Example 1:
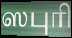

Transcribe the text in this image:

ஸபுரி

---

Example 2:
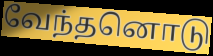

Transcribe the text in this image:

வேந்தனொடு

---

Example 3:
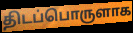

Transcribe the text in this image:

திடப்பொருளாக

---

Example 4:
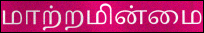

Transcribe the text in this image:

மாற்றமின்மை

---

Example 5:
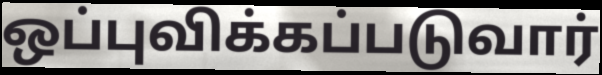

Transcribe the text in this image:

ஒப்புவிக்கப்படுவார்